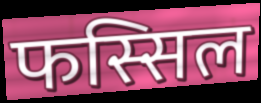
फस्सिल